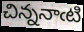
చిన్ననాఁటి